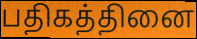
பதிகத்தினை